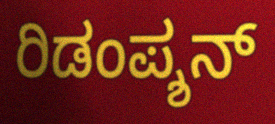
ರಿಡಂಪ್ಶನ್